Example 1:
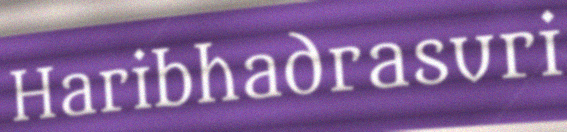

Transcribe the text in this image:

Haribhadrasuri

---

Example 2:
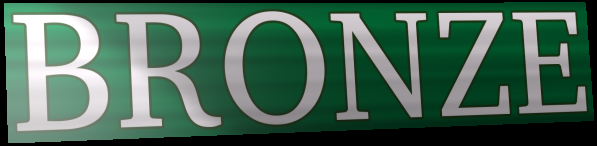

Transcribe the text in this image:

BRONZE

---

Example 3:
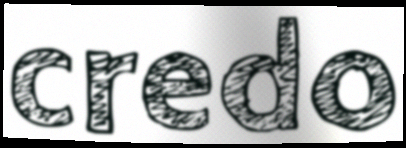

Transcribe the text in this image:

credo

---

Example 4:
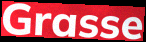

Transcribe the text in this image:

Grasse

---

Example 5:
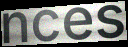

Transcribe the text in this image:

nces